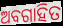
ଅବଗାହିତ